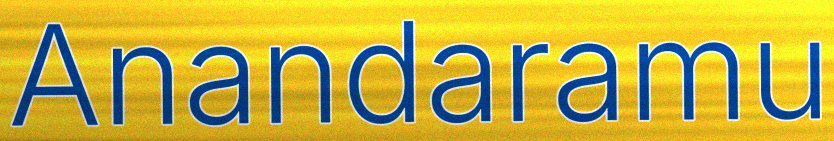
Anandaramu